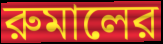
রুমালের